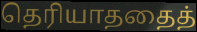
தெரியாததைத்